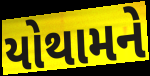
યોથામને